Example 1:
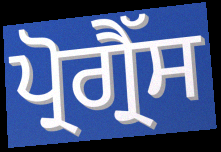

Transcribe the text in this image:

ਪ੍ਰੋਗ੍ਰੈੱਸ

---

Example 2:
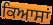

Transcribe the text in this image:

ਕਿਆਸਾਂ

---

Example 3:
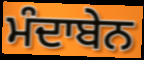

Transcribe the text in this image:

ਮੰਦਾਬੇਨ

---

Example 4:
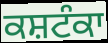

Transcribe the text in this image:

ਕਸ਼ਟੰਕਾ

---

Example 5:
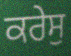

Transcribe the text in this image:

ਕਰੇਸੁ